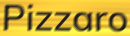
Pizzaro